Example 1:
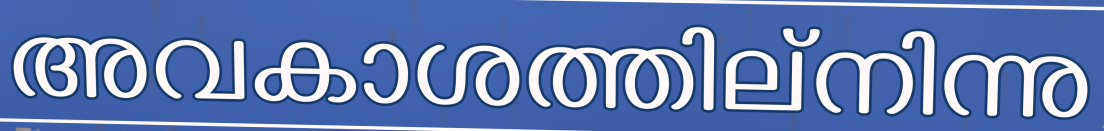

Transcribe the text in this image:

അവകാശത്തില്നിന്നു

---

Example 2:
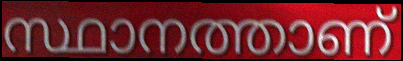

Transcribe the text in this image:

സ്ഥാനത്താണ്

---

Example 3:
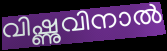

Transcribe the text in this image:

വിഷ്ണുവിനാൽ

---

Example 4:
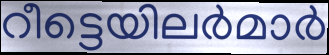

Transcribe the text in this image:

റീട്ടെയിലർമാർ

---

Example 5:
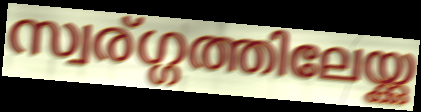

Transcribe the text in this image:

സ്വര്ഗ്ഗത്തിലേയ്ക്കു